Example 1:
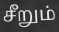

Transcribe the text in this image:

சீறும்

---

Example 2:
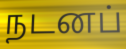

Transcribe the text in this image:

நடனப்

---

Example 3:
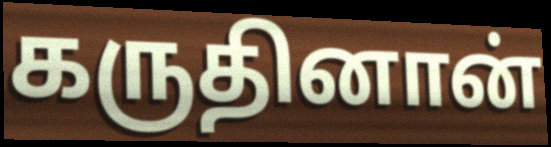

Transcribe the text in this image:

கருதினான்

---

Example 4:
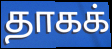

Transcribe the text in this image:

தாகக்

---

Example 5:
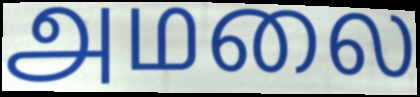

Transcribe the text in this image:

அமலை